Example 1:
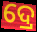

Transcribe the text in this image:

ଦ୍ରେ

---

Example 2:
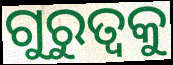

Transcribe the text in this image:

ଗୁରୁତ୍ବକୁ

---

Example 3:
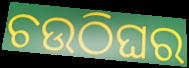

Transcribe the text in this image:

ଚଉଠିଘର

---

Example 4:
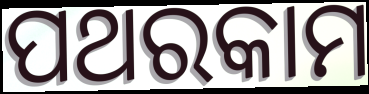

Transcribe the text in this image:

ପଥରକାମ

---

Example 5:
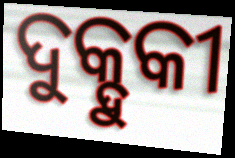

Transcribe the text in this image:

ଦୁକ୍ଦୁକୀ